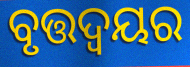
ବୃତ୍ତଦ୍ଵୟର